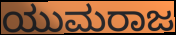
ಯುಮರಾಜ